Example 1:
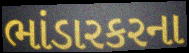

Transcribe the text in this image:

ભાંડારકરના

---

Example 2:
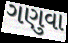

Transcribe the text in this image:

ગણુવા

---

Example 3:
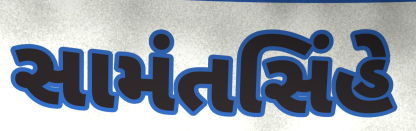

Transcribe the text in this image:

સામંતસિંહે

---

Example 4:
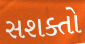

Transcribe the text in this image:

સશક્તો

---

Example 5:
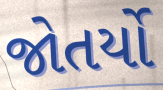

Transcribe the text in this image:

જોતર્યો